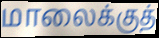
மாலைக்குத்